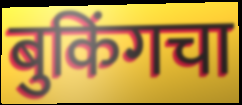
बुकिंगचा